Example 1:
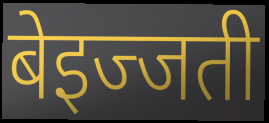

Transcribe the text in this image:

बेइज्जती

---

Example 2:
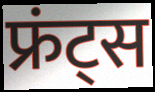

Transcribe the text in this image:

फ्रंट्स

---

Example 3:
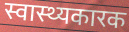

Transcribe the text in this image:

स्वास्थ्यकारक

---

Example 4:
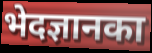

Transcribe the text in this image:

भेदज्ञानका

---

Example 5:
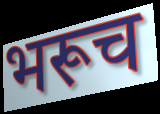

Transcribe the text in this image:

भरूच